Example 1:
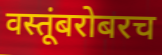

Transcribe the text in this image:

वस्तूंबरोबरच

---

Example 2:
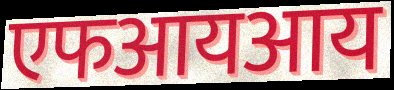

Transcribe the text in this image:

एफआयआय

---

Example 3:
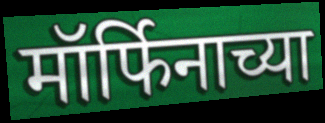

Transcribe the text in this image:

मॉर्फिनाच्या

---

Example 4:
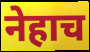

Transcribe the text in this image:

नेहाच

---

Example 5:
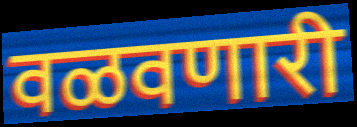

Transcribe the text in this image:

वळवणारी